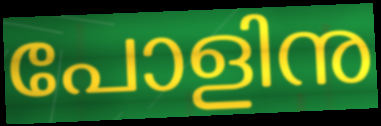
പോളിനു